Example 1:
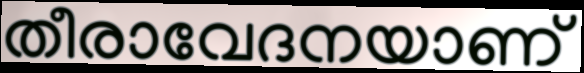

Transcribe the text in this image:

തീരാവേദനയാണ്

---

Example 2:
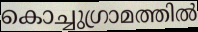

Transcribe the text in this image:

കൊച്ചുഗ്രാമത്തിൽ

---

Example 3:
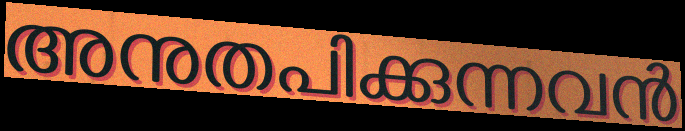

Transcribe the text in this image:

അനുതപിക്കുന്നവൻ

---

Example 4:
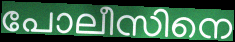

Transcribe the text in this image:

പോലീസിനെ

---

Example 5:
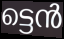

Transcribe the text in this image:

ട്ടെൻ